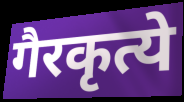
गैरकृत्ये